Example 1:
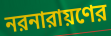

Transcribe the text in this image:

নরনারায়ণের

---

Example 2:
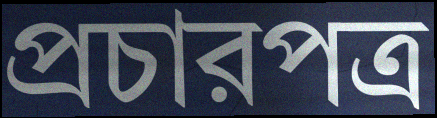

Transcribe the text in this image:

প্রচারপত্র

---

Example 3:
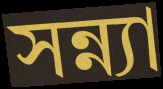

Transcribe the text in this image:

সন্ন্যা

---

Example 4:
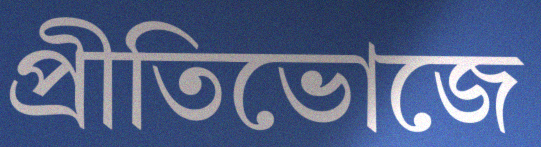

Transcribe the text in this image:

প্রীতিভোজে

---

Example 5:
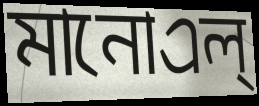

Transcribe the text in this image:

মানোএল্